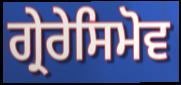
ਗ੍ਰੇਰੇਸਿਮੋਵ